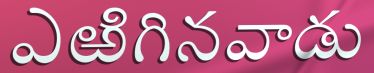
ఎఱిగినవాడు